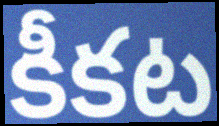
కీకట